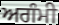
ਅਗੰਮੀ